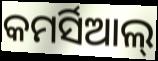
କମର୍ସିଆଲ୍